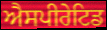
ਐਸਪੀਰੇਟਿਡ